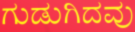
ಗುಡುಗಿದವು